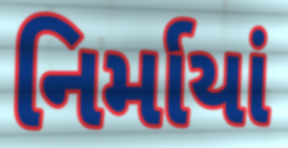
નિર્માયાં